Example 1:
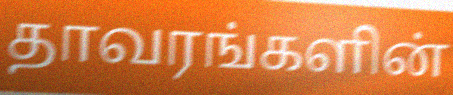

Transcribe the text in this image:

தாவரங்களின்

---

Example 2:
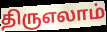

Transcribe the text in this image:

திருஎலாம்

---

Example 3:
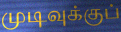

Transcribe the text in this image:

முடிவுக்குப்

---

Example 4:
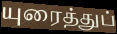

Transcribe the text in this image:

யுரைத்துப்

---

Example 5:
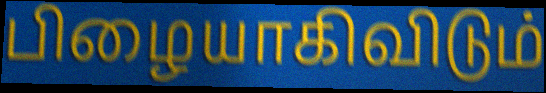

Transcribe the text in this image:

பிழையாகிவிடும்